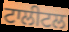
ਟਾਲੀਟਲ